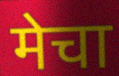
मेचा